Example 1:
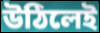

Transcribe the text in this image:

উঠিলেই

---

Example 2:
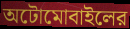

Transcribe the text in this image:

অটোমোবাইলের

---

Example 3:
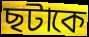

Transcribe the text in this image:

ছটাকে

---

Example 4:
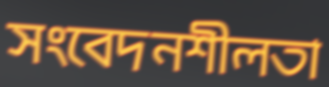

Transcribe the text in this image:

সংবেদনশীলতা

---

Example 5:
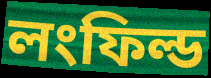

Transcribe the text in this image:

লংফিল্ড